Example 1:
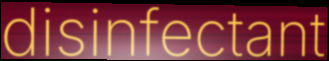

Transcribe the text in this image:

disinfectant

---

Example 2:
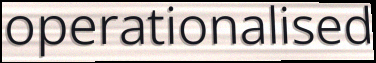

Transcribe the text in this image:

operationalised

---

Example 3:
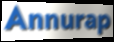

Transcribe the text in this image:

Annurap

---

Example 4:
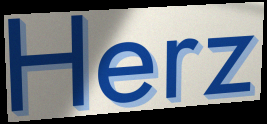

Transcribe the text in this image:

Herz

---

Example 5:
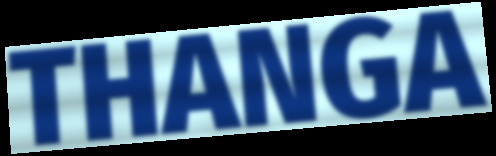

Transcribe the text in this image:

THANGA